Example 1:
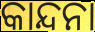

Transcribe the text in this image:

କାନ୍ଦନା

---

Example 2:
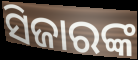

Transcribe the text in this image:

ସିଜାରଙ୍କ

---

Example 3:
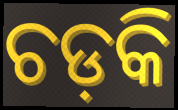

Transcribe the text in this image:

ଚଡ଼କି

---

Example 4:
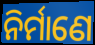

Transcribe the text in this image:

ନିର୍ମାଣେ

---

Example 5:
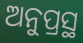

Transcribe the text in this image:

ଅନୁପ୍ରସ୍ଥ